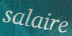
salaire